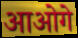
आओगे